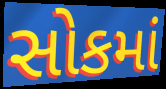
સોકમાં